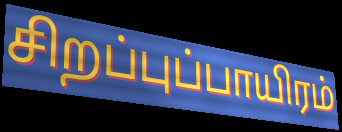
சிறப்புப்பாயிரம்